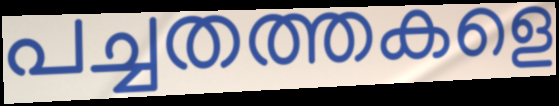
പച്ചതത്തകളെ